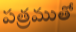
పత్రముతో